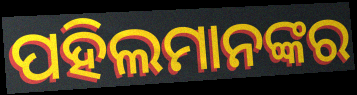
ପହିଲମାନଙ୍କର